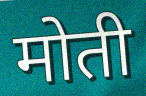
मोती